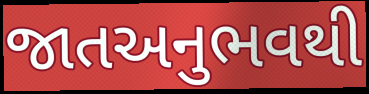
જાતઅનુભવથી